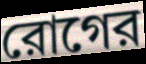
রোগের